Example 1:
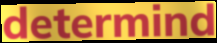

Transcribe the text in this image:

determind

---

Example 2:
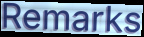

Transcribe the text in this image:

Remarks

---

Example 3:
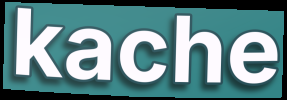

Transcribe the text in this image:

kache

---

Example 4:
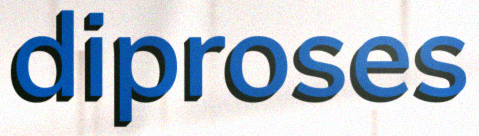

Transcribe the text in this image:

diproses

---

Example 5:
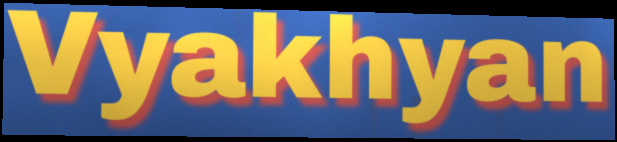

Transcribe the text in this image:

Vyakhyan